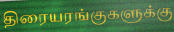
திரையரங்குகளுக்கு